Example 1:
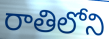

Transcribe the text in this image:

రాతిలోని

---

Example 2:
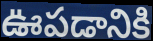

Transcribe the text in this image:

ఊపడానికి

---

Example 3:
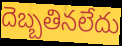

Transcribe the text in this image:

దెబ్బతినలేదు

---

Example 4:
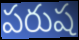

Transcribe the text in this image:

పరుష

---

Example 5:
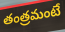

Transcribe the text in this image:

తంత్రమంటే